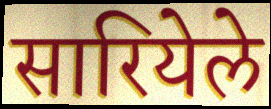
सारियेले